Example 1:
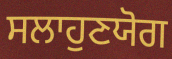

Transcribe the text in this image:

ਸਲਾਹੁਣਯੋਗ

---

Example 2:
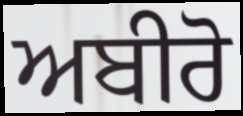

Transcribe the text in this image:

ਅਬੀਰੋ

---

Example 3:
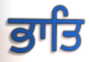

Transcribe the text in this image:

ਭਾਤਿ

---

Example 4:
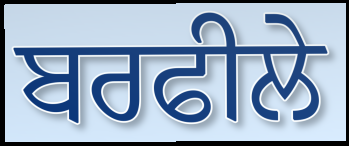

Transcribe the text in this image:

ਬਰਫੀਲੇ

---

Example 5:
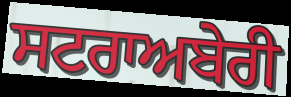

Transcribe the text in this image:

ਸਟਰਾਅਬੇਰੀ